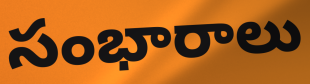
సంభారాలు